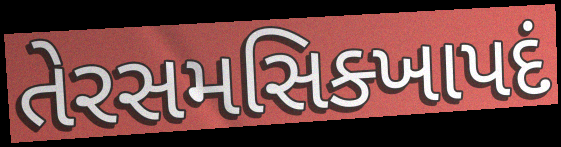
તેરસમસિક્ખાપદં